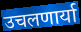
उचलणार्या